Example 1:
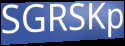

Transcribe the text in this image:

SGRSKp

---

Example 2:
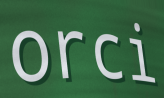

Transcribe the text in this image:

orci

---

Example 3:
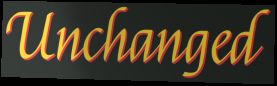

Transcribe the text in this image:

Unchanged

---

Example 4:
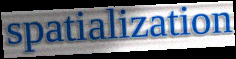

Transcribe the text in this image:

spatialization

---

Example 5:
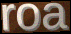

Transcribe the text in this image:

roa